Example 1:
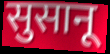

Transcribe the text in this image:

सुसानू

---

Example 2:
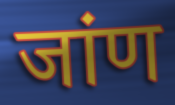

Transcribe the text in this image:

जांण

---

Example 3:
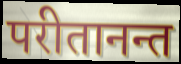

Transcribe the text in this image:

परीतानन्त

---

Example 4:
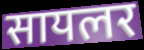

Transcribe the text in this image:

सायलर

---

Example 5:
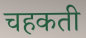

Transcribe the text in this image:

चहकती